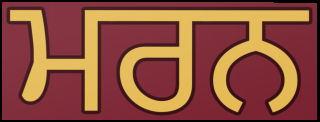
ਮਰਨ